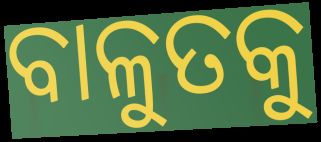
ବାଳୁତକୁ